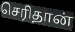
செரிதான்